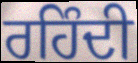
ਰਹਿੰਦੀ